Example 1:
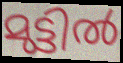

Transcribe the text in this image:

മുട്ടിൽ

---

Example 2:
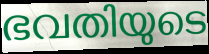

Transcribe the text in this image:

ഭവതിയുടെ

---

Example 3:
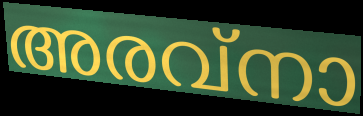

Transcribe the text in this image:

അരവ്നാ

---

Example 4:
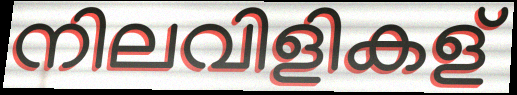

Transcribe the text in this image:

നിലവിളികള്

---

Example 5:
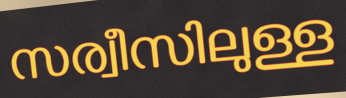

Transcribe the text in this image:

സര്വീസിലുള്ള